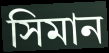
সিমান